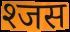
श्जस